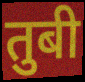
तुबी